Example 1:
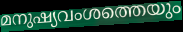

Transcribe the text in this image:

മനുഷ്യവംശത്തെയും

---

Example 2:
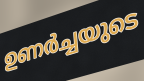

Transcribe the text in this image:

ഉണർച്ചയുടെ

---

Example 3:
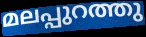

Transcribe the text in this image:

മലപ്പുറത്തു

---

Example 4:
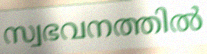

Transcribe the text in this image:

സ്വഭവനത്തിൽ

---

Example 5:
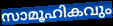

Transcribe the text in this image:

സാമൂഹികവും